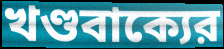
খণ্ডবাক্যের